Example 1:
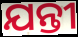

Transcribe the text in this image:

ଯନ୍ତୀ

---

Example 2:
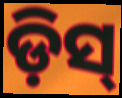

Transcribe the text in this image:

ଡ଼ିସ୍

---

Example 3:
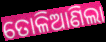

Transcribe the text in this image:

ତୋଳିଆଣିଲା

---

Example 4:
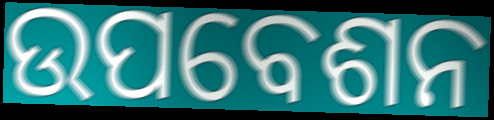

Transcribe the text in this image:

ଉପବେଶନ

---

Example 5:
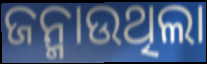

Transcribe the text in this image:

ଜନ୍ମାଉଥିଲା